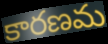
కారణమ